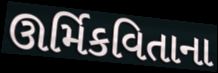
ઊર્મિકવિતાના